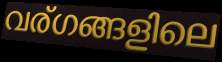
വര്ഗങ്ങളിലെ